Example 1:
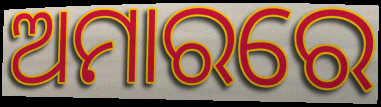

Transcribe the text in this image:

ଅମାରରେ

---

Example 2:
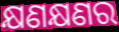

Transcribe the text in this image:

କ୍ଷଣକ୍ଷଣର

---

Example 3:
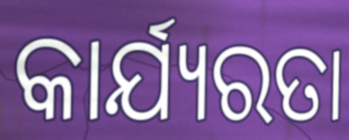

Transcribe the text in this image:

କାର୍ଯ୍ୟରତା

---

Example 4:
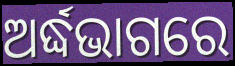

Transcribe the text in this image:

ଅର୍ଦ୍ଧଭାଗରେ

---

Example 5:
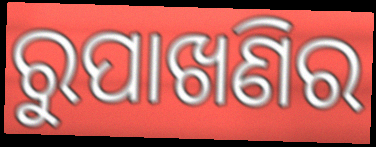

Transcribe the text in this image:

ରୁପାଖଣିର